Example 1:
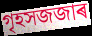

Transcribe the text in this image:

গৃহসজজাৰ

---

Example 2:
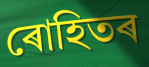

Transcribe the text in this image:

ৰোহিতৰ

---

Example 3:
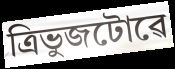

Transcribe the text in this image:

ত্ৰিভুজটোৱে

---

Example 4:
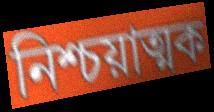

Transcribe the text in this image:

নিশ্চয়াত্মক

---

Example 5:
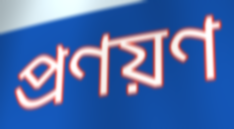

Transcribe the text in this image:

প্ৰণয়ণ